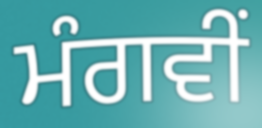
ਮੰਗਵੀਂ